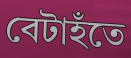
বেটাহঁতে